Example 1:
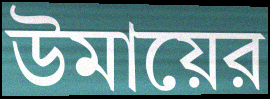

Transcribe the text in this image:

উমায়ের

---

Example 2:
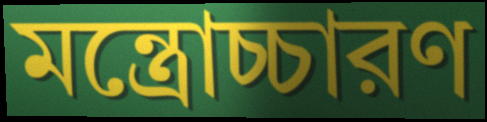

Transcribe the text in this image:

মন্ত্রোচ্চারণ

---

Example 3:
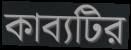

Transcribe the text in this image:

কাব্যটির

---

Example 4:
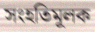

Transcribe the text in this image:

সংহতিমূলক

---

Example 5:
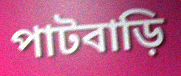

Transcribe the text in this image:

পাটবাড়ি